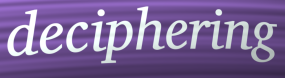
deciphering